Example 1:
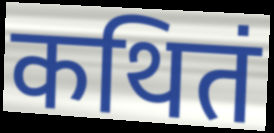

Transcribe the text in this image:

कथितं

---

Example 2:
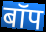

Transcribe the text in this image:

बॉप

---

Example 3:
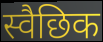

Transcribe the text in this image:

स्वैछिक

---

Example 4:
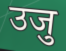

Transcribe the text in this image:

उजु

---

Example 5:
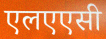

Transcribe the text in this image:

एलएएसी